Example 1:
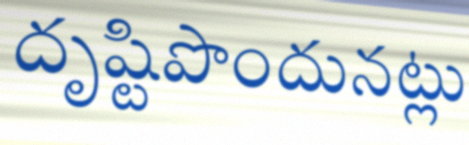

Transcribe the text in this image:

దృష్టిపొందునట్లు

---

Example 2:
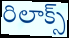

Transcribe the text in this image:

రిలాక్స్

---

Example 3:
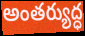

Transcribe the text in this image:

అంతర్యుద్ధ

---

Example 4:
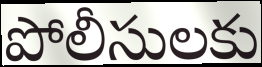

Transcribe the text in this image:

పోలీసులకు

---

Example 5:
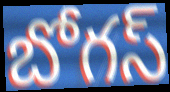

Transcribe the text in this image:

బోగస్